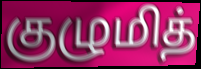
குழுமித்